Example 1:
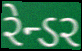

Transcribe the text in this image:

રેન્ડર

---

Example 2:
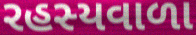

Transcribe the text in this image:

રહસ્યવાળા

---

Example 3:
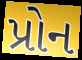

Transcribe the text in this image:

પ્રોન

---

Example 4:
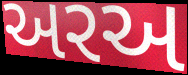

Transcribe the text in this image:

અરઅ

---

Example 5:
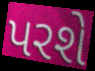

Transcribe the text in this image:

પરશે